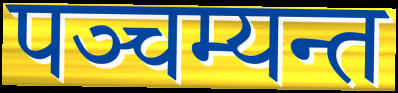
पञ्चम्यन्त